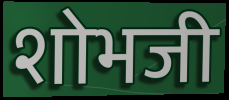
शोभजी